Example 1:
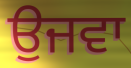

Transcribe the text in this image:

ਉਜਵਾ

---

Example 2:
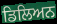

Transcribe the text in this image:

ਡਿਲਿਅਨ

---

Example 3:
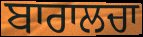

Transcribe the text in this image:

ਬਾਰਾਲਚਾ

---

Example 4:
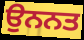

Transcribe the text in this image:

ਉਨਨਤ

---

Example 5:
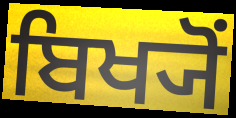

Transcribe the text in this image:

ਬਿਖ੍ਯੋਂ